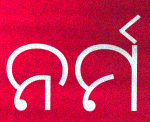
ନର୍ମ